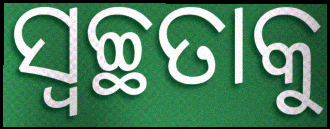
ସ୍ବଚ୍ଛତାକୁ